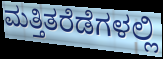
ಮತ್ತಿತರೆಡೆಗಳಲ್ಲಿ